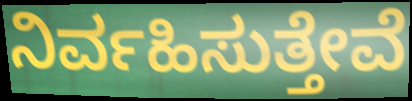
ನಿರ್ವಹಿಸುತ್ತೇವೆ